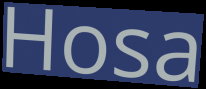
Hosa